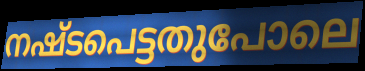
നഷ്ടപെട്ടതുപോലെ